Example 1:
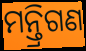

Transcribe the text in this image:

ମନ୍ତ୍ରିଗଣ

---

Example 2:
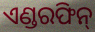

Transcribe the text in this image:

ଏଣ୍ଡରଫିନ୍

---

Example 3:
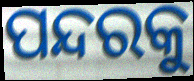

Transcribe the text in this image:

ପନ୍ଦରକୁ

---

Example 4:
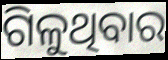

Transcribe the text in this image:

ଗିଳୁଥିବାର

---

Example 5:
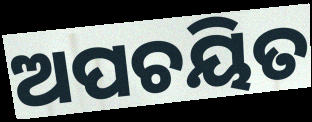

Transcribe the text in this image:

ଅପଚୟିତ